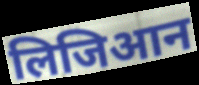
लिजिआन